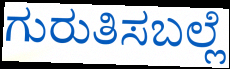
ಗುರುತಿಸಬಲ್ಲೆ